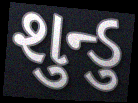
શુન્ડુ